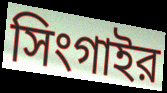
সিংগাইর